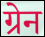
ग्रेन